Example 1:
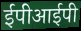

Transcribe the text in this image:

ईपीआईपी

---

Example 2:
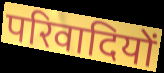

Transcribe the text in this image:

परिवादियों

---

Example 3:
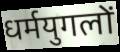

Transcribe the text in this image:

धर्मयुगलों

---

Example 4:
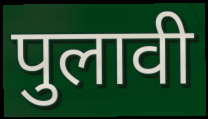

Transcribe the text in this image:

पुलावी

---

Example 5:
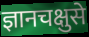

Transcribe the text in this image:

ज्ञानचक्षुसे